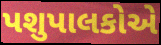
પશુપાલકોએ